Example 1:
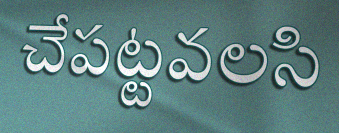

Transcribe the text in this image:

చేపట్టవలసి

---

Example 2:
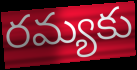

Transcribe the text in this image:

రమ్యకు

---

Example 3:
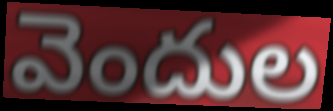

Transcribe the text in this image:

వెందుల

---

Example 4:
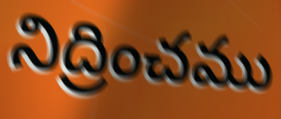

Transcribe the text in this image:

నిద్రించము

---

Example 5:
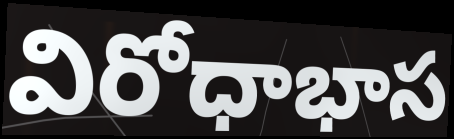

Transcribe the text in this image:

విరోధాభాస